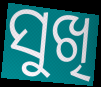
ସୁଖି